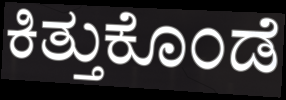
ಕಿತ್ತುಕೊಂಡೆ